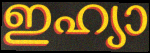
ഇഹ്യാ